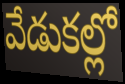
వేడుకల్లో